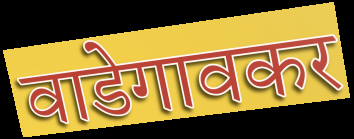
वाडेगावकर